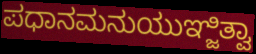
ಪಧಾನಮನುಯುಞ್ಜಿತ್ವಾ